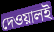
দেওয়ালই